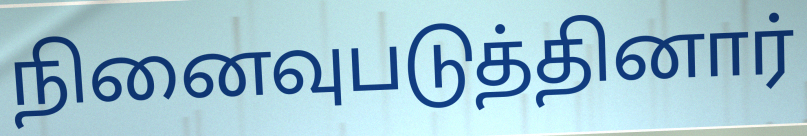
நினைவுபடுத்தினார்